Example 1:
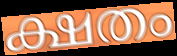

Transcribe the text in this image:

ക്ഷതം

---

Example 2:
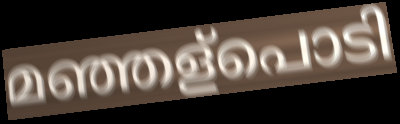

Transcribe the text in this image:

മഞ്ഞള്പൊടി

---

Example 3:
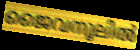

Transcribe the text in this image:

ജൈവനൂലിൽ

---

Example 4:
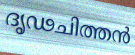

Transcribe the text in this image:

ദൃഢചിത്തൻ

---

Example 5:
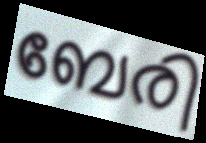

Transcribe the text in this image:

ബേരി